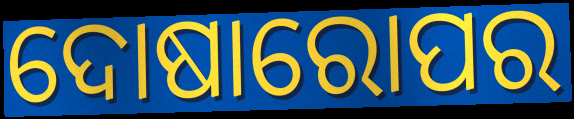
ଦୋଷାରୋପର